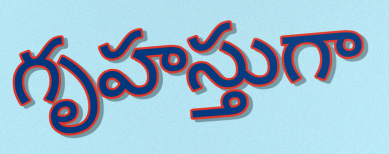
గృహస్తుగా